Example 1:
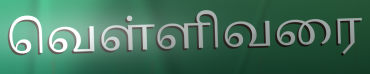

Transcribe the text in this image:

வெள்ளிவரை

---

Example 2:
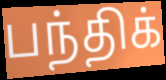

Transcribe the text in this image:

பந்திக்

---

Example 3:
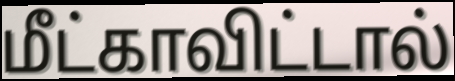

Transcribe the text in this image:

மீட்காவிட்டால்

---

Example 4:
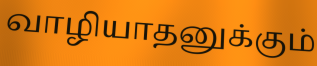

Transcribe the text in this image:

வாழியாதனுக்கும்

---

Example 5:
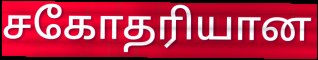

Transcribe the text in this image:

சகோதரியான